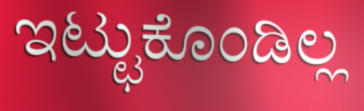
ಇಟ್ಟುಕೊಂಡಿಲ್ಲ